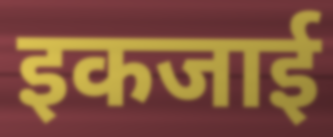
इकजाई